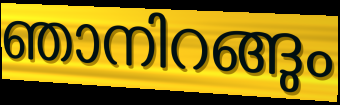
ഞാനിറങ്ങും